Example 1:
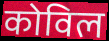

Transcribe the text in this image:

कोविल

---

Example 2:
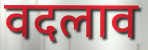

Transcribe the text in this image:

वदलाव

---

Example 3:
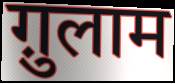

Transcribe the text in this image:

ग़ुलाम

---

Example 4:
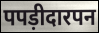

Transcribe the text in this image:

पपड़ीदारपन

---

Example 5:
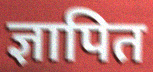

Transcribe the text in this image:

ज्ञापित